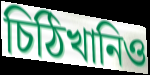
চিঠিখানিও